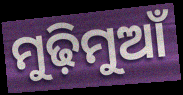
ମୁଢ଼ିମୁଆଁ